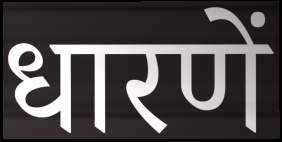
धारणें